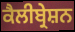
ਕੈਲੀਬ੍ਰੇਸ਼ਨ